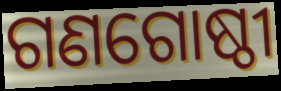
ଗଣଗୋଷ୍ଠୀ